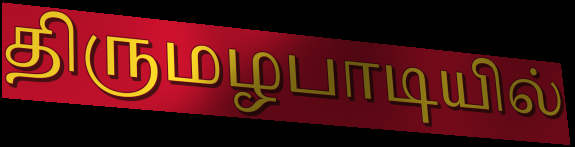
திருமழபாடியில்